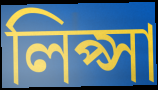
লিপ্সা